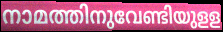
നാമത്തിനുവേണ്ടിയുളള